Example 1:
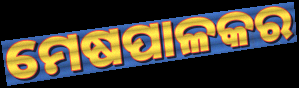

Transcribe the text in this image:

ମେଷପାଳକର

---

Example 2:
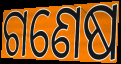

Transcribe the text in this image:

ଗଣେଷ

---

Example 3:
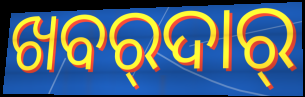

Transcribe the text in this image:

ଖବର୍‍ଦାର୍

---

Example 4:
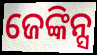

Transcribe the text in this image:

ଜେଙ୍କିନ୍ସ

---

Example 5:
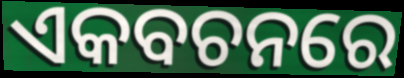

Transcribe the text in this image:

ଏକବଚନରେ